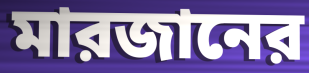
মারজানের